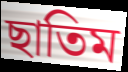
ছাতিম